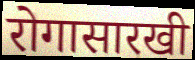
रोगासारखी